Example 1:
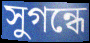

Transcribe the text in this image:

সুগন্ধে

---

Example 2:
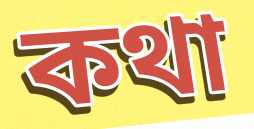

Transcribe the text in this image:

কথা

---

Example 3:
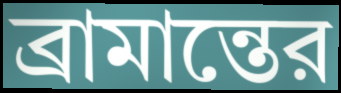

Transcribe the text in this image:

ব্রামান্তের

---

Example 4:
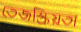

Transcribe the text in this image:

তেজস্ক্রিয়তা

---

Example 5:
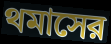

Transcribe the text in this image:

থমাসের